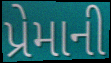
પ્રેમાની